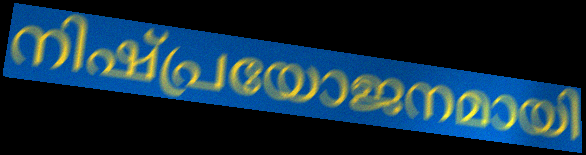
നിഷ്പ്രയോജനമായി